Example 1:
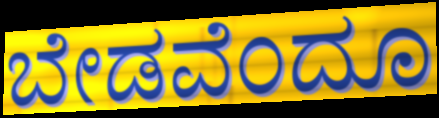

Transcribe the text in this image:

ಬೇಡವೆಂದೂ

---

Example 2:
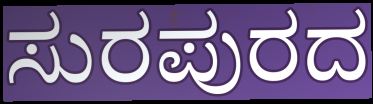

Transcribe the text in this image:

ಸುರಪುರದ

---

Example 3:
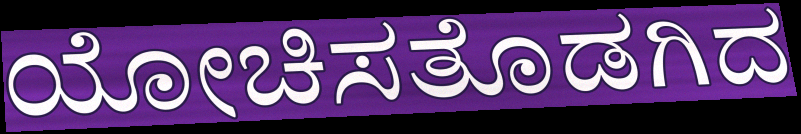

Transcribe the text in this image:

ಯೋಚಿಸತೊಡಗಿದ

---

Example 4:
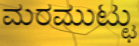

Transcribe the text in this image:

ಮರಮುಟ್ಟು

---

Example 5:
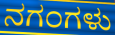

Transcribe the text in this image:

ನಗಂಗಳು